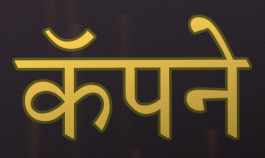
कॅपने